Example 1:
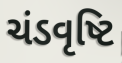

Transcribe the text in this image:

ચંડવૃષ્ટિ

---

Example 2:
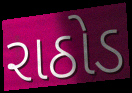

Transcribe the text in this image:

રાઠોડ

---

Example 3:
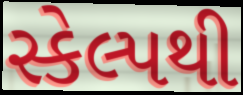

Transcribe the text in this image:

સ્કેલ્પથી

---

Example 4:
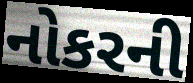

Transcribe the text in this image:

નોકરની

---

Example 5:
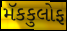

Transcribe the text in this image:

મૅકકુલોફ